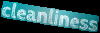
cleanliness